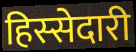
हिस्‍सेदारी